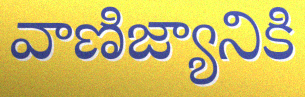
వాణిజ్యానికి